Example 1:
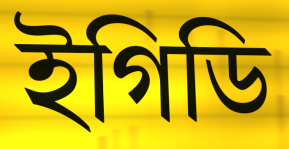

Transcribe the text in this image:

ইগিডি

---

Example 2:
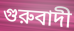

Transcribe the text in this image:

গুরুবাদী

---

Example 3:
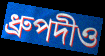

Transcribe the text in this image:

ধ্রুপদীও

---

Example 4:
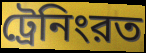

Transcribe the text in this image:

ট্রেনিংরত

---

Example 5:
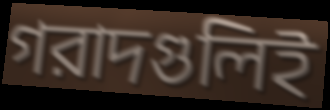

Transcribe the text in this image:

গরাদগুলিই